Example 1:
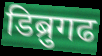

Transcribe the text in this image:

डिब्रुगढ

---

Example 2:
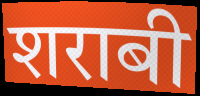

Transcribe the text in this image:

शराबी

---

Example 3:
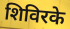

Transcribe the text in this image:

शिविरके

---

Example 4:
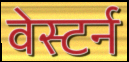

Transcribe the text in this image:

वेस्‍टर्न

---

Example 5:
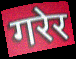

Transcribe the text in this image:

गरेर